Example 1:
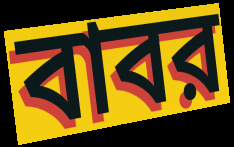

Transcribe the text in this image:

বাবর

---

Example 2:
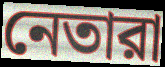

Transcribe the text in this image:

নেতারা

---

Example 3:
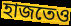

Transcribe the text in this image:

হাজতেও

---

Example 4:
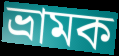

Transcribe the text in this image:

ভ্রামক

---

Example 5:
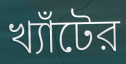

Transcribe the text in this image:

খ্যাঁটের